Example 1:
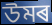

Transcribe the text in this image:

উমৰ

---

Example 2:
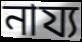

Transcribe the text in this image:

নায্য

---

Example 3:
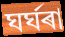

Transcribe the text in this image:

ঘৰ্ঘৰা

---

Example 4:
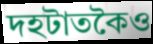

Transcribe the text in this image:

দহটাতকৈও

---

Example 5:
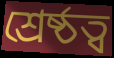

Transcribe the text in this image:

শ্ৰেষ্ঠত্ব